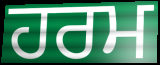
ਹਰਮ